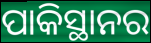
ପାକିସ୍ଥାନର